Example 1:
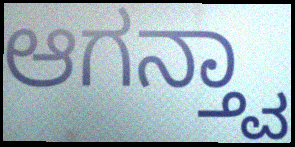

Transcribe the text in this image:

ಆಗನ್ತ್ವಾ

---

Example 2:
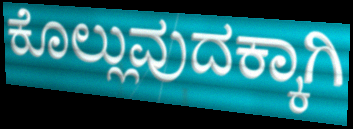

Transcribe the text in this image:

ಕೊಲ್ಲುವುದಕ್ಕಾಗಿ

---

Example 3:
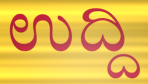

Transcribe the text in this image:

ಉದ್ದಿ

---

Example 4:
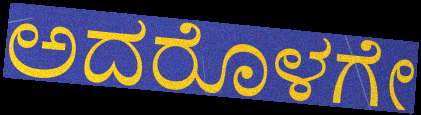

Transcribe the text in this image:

ಅದರೊಳಗೇ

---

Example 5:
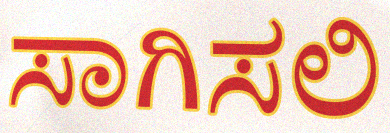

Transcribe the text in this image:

ಸಾಗಿಸಲಿ